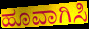
ಹೂವಾಗಿಸಿ